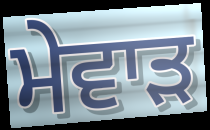
ਮੇਵਾੜ